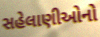
સહેલાણીઓનો